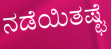
ನಡೆಯಿತಷ್ಟೆ